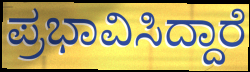
ಪ್ರಭಾವಿಸಿದ್ದಾರೆ